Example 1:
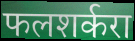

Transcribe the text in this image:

फलशर्करा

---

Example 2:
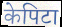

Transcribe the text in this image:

केपिटा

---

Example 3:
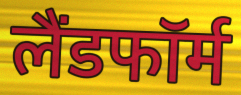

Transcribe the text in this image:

लैंडफॉर्म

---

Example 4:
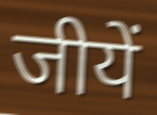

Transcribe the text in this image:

जीयें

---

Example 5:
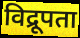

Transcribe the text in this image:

विद्रूपता